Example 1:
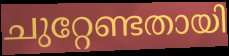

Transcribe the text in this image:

ചുറ്റേണ്ടതായി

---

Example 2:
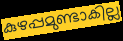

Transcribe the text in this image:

കുഴപ്പമുണ്ടാകില്ല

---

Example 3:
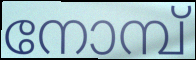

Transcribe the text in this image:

നോമ്പ്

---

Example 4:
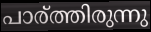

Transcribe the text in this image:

പാര്ത്തിരുന്നു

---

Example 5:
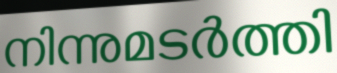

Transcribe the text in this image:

നിന്നുമടർത്തി